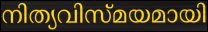
നിത്യവിസ്മയമായി